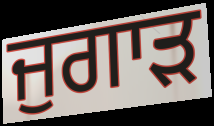
ਜੁਗਾੜ